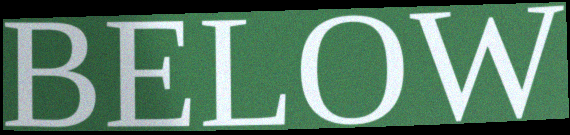
BELOW